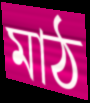
মাঠ